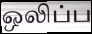
ஒலிப்ப